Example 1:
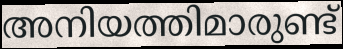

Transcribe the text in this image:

അനിയത്തിമാരുണ്ട്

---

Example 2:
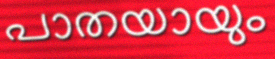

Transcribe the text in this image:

പാതയായും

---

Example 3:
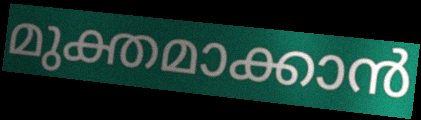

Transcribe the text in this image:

മുക്തമാക്കാൻ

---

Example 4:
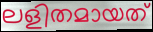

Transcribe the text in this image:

ലളിതമായത്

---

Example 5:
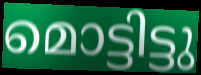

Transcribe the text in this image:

മൊട്ടിട്ടു